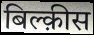
बिल्क़ीस